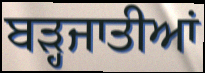
ਬੜ੍ਹਜਾਤੀਆਂ